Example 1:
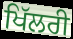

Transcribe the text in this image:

ਖਿੱਲਰੀ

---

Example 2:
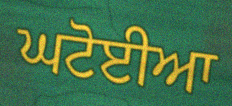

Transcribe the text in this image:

ਘਟੋਈਆ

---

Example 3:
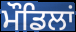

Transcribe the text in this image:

ਮੌਡਿਲਾਂ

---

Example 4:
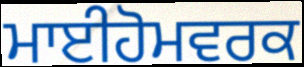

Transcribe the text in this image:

ਮਾਈਹੋਮਵਰਕ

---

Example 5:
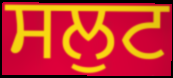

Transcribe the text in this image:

ਸਲੁਟ